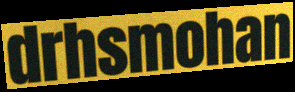
drhsmohan